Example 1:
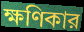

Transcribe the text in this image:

ক্ষণিকার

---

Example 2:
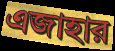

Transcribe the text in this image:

এজাহার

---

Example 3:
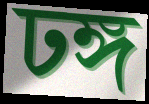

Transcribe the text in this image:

ঢঙ্গ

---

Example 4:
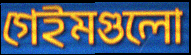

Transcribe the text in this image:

গেইমগুলো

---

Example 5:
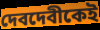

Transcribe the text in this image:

দেবদেবীকেই